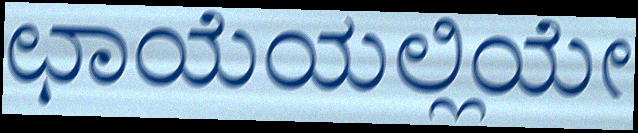
ಛಾಯೆಯಲ್ಲಿಯೇ